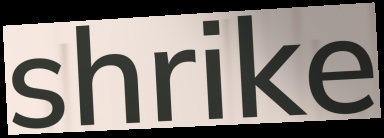
shrike